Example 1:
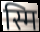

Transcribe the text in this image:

स्मि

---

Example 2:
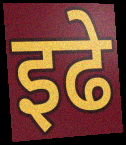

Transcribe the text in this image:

इढे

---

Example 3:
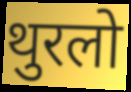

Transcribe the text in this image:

थुरलो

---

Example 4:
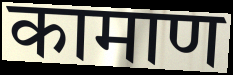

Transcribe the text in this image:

कामाण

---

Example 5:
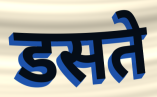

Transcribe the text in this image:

डसते